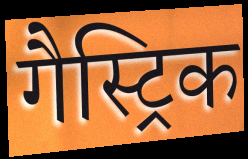
गैस्ट्रिक